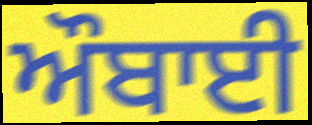
ਔਬਾਈ